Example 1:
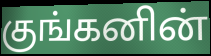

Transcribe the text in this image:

குங்கனின்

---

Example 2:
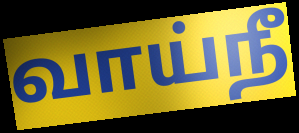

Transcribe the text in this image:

வாய்நீ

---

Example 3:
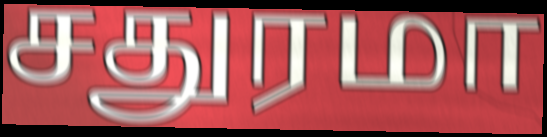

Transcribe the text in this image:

சதுரமா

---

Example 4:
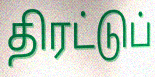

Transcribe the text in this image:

திரட்டுப்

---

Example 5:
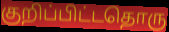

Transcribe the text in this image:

குறிப்பிட்டதொரு